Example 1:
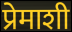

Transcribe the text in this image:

प्रेमाशी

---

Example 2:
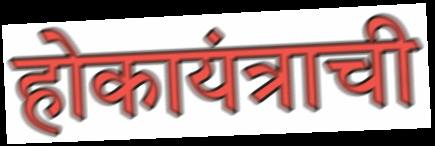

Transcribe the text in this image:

होकायंत्राची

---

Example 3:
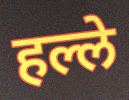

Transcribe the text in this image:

हल्ले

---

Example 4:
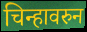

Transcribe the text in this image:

चिन्हावरुन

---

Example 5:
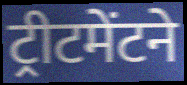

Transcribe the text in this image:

ट्रीटमेंटने